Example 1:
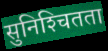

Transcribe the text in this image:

सुनिश्चितता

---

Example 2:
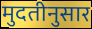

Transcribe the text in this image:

मुदतीनुसार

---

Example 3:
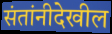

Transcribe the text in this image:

संतांनीदेखील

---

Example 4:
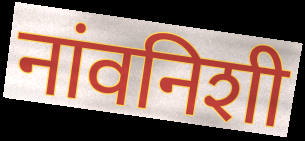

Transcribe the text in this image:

नांवनिशी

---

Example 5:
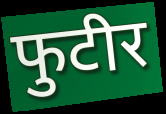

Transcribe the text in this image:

फुटीर